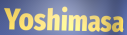
Yoshimasa